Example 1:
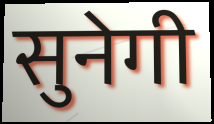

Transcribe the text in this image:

सुनेगी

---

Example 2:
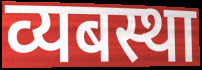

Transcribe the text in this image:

व्यबस्था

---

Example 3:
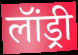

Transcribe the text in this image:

लॉंड्री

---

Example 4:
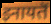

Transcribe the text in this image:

इनायतें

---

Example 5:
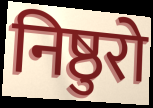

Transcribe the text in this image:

निष्ठुरो